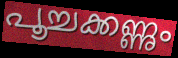
പൂച്ചക്കണ്ണും